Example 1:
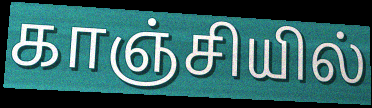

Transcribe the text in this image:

காஞ்சியில்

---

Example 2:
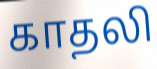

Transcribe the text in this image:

காதலி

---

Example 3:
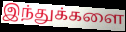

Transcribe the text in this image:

இந்துக்களை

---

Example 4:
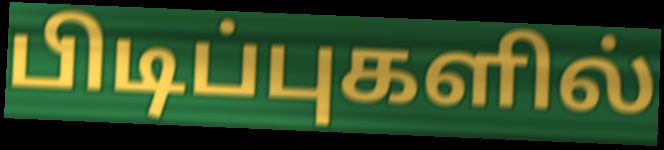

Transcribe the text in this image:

பிடிப்புகளில்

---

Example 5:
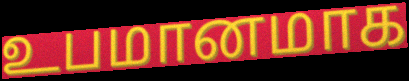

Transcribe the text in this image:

உபமானமாக